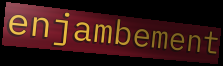
enjambement